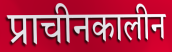
प्राचीनकालीन